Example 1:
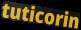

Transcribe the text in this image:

tuticorin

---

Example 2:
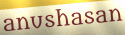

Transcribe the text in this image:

anushasan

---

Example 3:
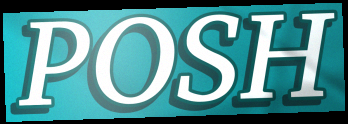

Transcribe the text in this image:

POSH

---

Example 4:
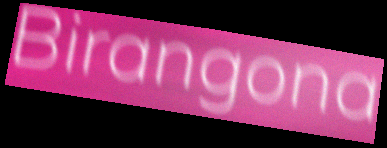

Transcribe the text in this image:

Birangona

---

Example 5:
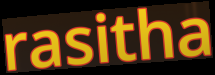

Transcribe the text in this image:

rasitha